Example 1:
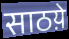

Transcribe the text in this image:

साठय़े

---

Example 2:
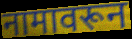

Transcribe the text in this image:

नामावरून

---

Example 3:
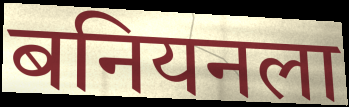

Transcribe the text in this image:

बनियनला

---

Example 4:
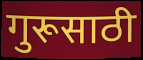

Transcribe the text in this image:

गुरूसाठी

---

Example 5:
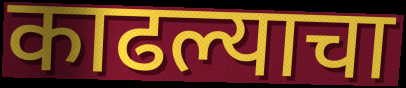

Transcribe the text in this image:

काढल्याचा